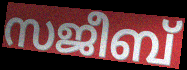
സജീബ്